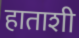
हाताशी